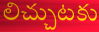
లిచ్చుటకు